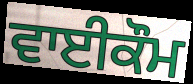
ਵਾਈਕੌਮ